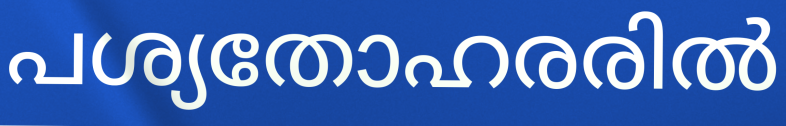
പശ്യതോഹരരിൽ